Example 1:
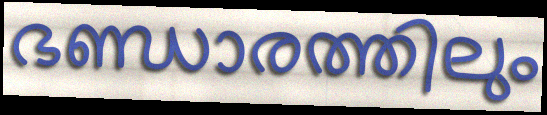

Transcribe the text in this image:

ഭണ്ഡാരത്തിലും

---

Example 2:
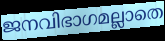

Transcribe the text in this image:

ജനവിഭാഗമല്ലാതെ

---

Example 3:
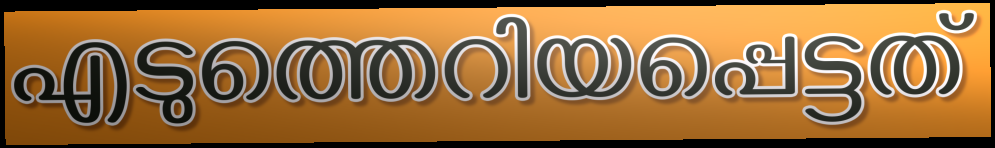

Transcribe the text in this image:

എടുത്തെറിയപ്പെട്ടത്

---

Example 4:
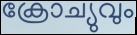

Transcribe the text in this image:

ക്രോച്യുവും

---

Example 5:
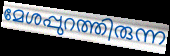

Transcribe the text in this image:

മേശപ്പുറത്തിരുന്ന